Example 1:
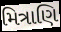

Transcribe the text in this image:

મિત્રાણિ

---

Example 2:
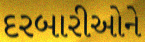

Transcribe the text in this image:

દરબારીઓને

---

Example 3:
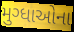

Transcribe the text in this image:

મુગ્ધાઓના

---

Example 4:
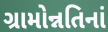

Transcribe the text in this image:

ગ્રામોન્નતિનાં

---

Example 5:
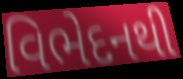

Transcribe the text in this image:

વિભેદનથી